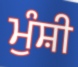
ਮੁੰਸ਼ੀ